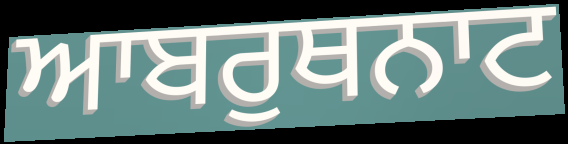
ਆਬਰੁਥਨਾਟ